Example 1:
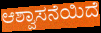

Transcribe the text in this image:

ಆಶ್ವಾಸನೆಯಿದೆ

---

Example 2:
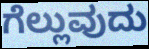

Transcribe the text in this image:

ಗೆಲ್ಲುವುದು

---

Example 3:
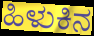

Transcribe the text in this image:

ಹಿಳುಕಿನ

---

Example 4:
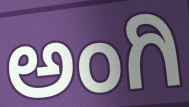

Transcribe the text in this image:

ಅಂಗಿ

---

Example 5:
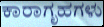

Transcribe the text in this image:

ಕಾರಾಗೃಹಗಳು